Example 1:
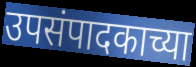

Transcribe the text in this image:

उपसंपादकाच्या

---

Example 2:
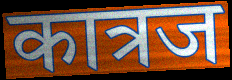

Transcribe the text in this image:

कात्रज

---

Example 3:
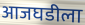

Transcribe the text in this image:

आजघडीला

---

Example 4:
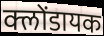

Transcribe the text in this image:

क्लोंडायक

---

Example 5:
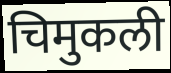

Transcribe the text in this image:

चिमुकली